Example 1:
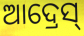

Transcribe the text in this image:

ଆଦ୍ରେସ୍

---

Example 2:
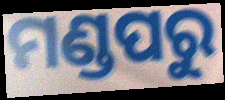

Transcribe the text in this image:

ମଣ୍ଡପରୁ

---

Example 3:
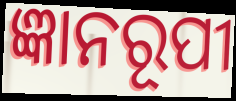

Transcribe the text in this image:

ଜ୍ଞାନରୂପୀ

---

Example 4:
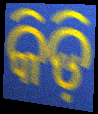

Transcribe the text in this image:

କିଡ଼ି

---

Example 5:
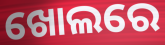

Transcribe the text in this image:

ଖୋଲରେ